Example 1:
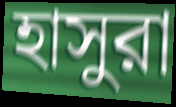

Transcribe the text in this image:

হাসুরা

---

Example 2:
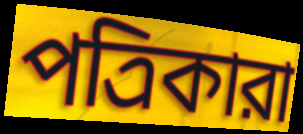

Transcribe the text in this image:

পত্রিকারা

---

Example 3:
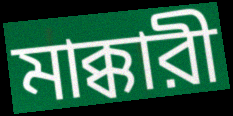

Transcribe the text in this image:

মাক্কারী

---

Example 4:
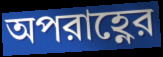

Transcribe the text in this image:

অপরাহ্ণের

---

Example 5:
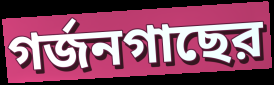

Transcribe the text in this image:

গর্জনগাছের